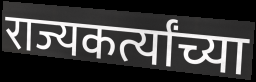
राज्यकर्त्यांच्या